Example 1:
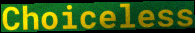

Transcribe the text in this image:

Choiceless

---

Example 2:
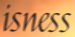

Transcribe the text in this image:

isness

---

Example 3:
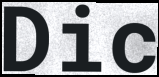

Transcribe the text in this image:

Dic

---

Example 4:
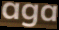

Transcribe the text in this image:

aga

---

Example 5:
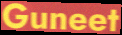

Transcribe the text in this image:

Guneet